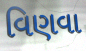
વિણવા